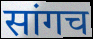
सांगच